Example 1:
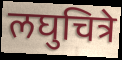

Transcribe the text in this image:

लघुचित्रे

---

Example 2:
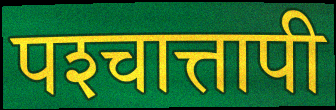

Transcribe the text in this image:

पश्‍चात्तापी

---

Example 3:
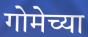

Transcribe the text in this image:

गोमेच्या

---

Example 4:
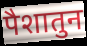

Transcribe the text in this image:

पैशातुन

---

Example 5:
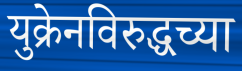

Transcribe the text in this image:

युक्रेनविरुद्धच्या